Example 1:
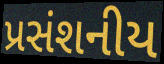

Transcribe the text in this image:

પ્રસંશનીય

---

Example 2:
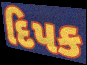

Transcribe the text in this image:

દિપક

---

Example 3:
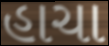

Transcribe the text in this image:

હાચા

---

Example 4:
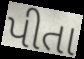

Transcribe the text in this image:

પીતા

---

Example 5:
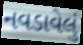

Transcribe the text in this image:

નવડાવેલું